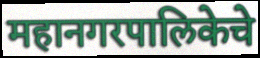
महानगरपालिकेचे